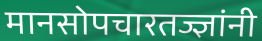
मानसोपचारतज्ज्ञांनी